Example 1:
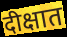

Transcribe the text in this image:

दीक्षात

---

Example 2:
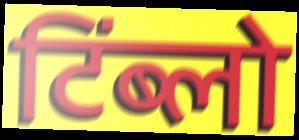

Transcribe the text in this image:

टिंब्लो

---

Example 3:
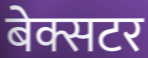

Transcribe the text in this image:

बेक्सटर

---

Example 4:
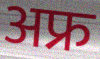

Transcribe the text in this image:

अफ्र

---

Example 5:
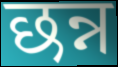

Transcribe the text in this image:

छन्न